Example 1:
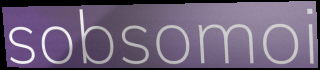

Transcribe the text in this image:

sobsomoi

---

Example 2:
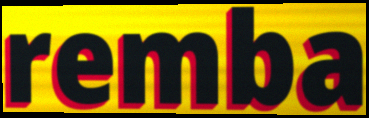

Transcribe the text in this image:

remba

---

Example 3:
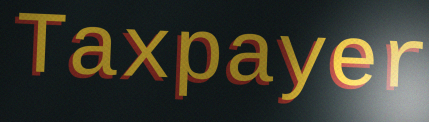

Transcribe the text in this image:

Taxpayer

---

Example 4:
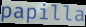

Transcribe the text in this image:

papilla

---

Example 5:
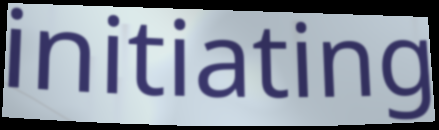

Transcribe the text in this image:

initiating